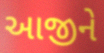
આજીને